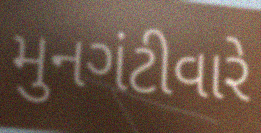
મુનગંટીવારે